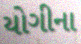
યોગીના